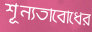
শূন্যতাবোধের